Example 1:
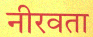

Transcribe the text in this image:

नीरवता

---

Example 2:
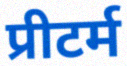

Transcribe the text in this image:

प्रीटर्म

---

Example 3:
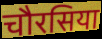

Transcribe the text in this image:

चौरसिया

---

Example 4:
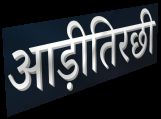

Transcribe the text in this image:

आड़ीतिरछी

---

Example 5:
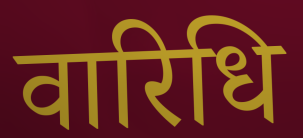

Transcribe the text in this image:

वारिधि